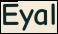
Eyal